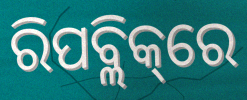
ରିପବ୍ଲିକ୍‌ରେ